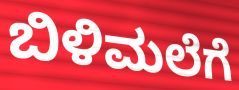
ಬಿಳಿಮಲೆಗೆ